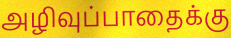
அழிவுப்பாதைக்கு